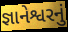
જ્ઞાનેશ્વરનું